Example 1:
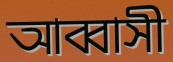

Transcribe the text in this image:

আব্বাসী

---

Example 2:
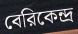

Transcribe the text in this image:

বেরিকেন্দ্র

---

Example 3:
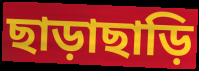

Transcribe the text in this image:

ছাড়াছাড়ি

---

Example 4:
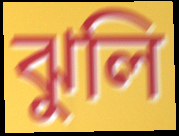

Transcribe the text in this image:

ঝুলি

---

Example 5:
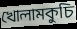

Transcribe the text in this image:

খোলামকুচি